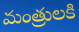
మంత్రులకి